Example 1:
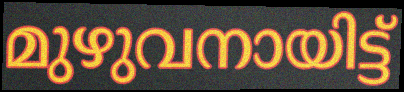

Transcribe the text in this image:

മുഴുവനായിട്ട്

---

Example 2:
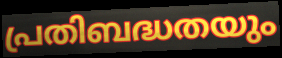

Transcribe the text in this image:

പ്രതിബദ്ധതയും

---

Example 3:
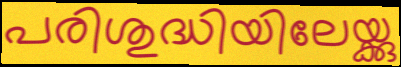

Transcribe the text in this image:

പരിശുദ്ധിയിലേയ്ക്കു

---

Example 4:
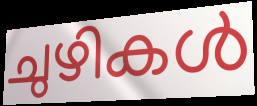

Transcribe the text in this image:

ചുഴികൾ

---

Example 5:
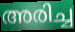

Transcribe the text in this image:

അരിച്ച